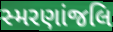
સ્મરણાંજલિ